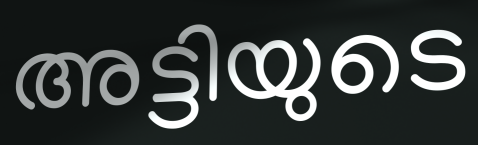
അട്ടിയുടെ